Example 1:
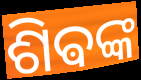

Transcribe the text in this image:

ଶିଵଙ୍କ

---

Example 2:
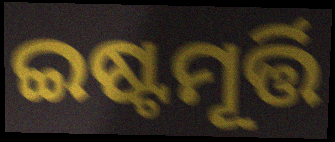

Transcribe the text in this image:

ଇଷ୍ଟମୂର୍ତ୍ତି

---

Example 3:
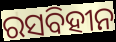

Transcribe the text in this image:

ରସବିହୀନ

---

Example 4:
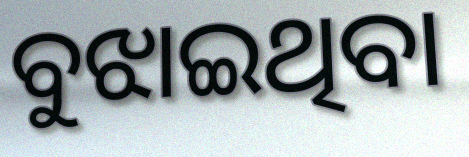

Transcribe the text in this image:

ବୁଝାଇଥିବା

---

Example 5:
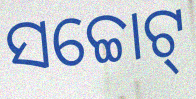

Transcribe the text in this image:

ସଚ୍ଚୋଟ୍